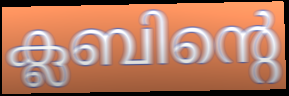
ക്ലബിന്റെ